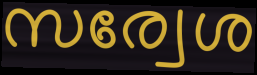
സര്വേശ